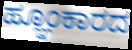
ಹ್ಞೂಂಕಾರದ